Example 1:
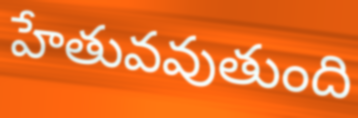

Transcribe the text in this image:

హేతువవుతుంది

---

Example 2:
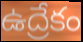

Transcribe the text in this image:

ఉద్రేకం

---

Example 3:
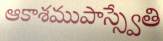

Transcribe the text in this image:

ఆకాశముపాస్స్వేతి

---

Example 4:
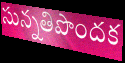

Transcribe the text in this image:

సున్నతిపొందక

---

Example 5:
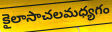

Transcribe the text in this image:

కైలాసాచలమధ్యగం